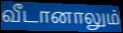
வீடானாலும்